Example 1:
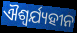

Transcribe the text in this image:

ଐଶ୍ୱର୍ଯ୍ୟହୀନ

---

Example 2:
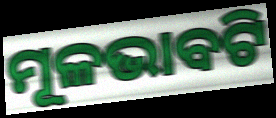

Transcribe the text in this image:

ମୂଳଭାବଟି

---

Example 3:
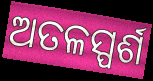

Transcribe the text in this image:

ଅତଳସ୍ପର୍ଶ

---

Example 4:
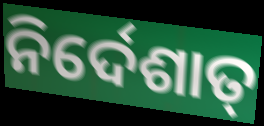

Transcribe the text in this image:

ନିର୍ଦେଶାତ୍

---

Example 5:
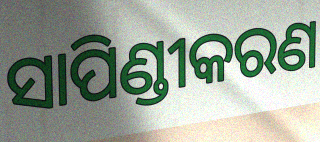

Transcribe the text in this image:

ସାପିଣ୍ଡୀକରଣ